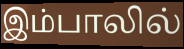
இம்பாலில்